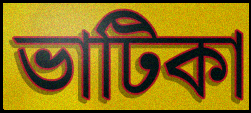
ভাটিকা